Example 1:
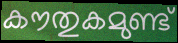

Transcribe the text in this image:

കൗതുകമുണ്ട്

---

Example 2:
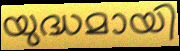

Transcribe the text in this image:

യുദ്ധമായി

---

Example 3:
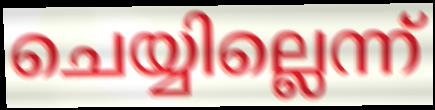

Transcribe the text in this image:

ചെയ്യില്ലെന്ന്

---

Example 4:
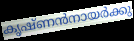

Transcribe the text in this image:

കൃഷ്ണൻനായർക്കു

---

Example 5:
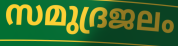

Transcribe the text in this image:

സമുദ്രജലം